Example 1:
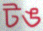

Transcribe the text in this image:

টঙ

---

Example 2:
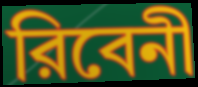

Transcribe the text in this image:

রিবেনী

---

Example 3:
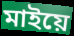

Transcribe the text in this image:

মাইয়ে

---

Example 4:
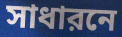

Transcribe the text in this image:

সাধারনে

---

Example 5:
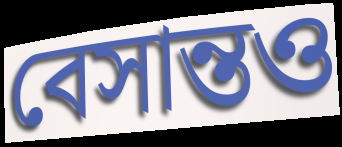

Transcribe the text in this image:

বেসান্তও